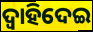
ଦ୍ବାହିଦେଇ